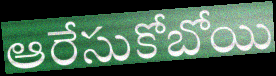
ఆరేసుకోబోయి